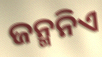
ଜନ୍ମନିଏ